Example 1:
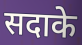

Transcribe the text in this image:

सदाके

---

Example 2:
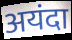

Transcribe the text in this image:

अयंदा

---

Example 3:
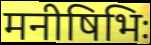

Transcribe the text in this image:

मनीषिभिः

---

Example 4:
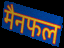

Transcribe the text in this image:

मैनफल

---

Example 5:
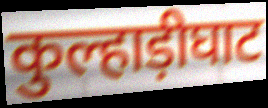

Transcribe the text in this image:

कुल्हाड़ीघाट